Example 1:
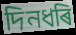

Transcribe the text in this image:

দিনধৰি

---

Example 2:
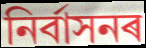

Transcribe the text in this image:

নিৰ্বাসনৰ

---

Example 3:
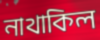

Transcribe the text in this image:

নাথাকিল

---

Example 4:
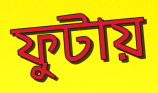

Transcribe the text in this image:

ফুটায়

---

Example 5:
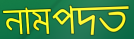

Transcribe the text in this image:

নামপদত